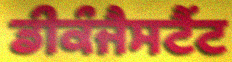
ਡੀਕੰਜੈਸਟੈਂਟ